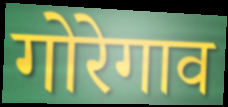
गोरेगाव